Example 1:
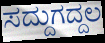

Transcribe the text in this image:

ಸದ್ದುಗದ್ದಲ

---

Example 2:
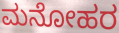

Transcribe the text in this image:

ಮನೋಹರ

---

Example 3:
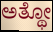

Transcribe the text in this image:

ಅತ್ಥೋ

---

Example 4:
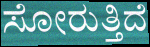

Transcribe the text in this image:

ಸೋರುತ್ತಿದೆ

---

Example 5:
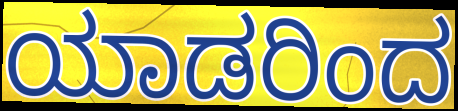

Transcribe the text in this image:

ಯಾಡರಿಂದ